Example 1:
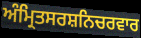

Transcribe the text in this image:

ਅੰਮ੍ਰਿਤਸਰਸ਼ਨਿਚਰਵਾਰ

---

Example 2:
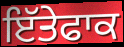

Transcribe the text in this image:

ਇੱਤੇਫਾਕ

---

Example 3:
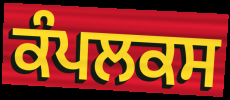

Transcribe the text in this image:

ਕੰਪਲਕਸ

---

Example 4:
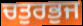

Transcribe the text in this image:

ਚਤੁਰਭੁਜ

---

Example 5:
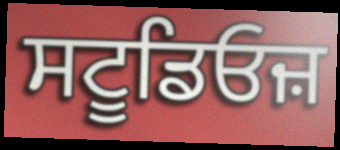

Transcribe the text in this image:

ਸਟੂਡਿਓਜ਼